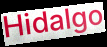
Hidalgo